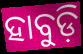
ହାବୁଡ଼ି